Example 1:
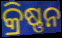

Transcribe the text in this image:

କ୍ରିଷ୍ଣନ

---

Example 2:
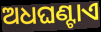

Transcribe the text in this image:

ଅଧଘଣ୍ଟାଏ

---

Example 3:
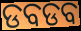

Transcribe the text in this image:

ଡବଡବ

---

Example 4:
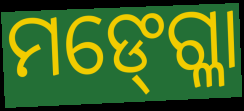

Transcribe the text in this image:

ମଙ୍ଗ୍ଳୋ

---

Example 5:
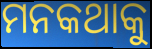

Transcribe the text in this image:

ମନକଥାକୁ